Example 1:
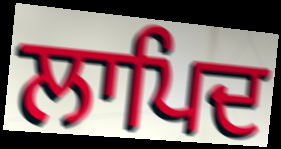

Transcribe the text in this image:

ਲਾਪਿਦ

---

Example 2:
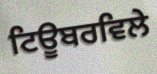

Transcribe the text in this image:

ਟਿਊਬਰਵਿਲੇ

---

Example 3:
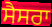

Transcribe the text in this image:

ਸੈਸਰਾ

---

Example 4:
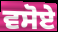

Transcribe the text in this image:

ਵਸੋਏ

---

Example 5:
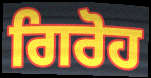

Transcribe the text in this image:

ਗਿਰੋਹ